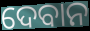
ଦେବାନ